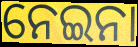
ନେଇନା